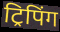
ट्रिपिंग